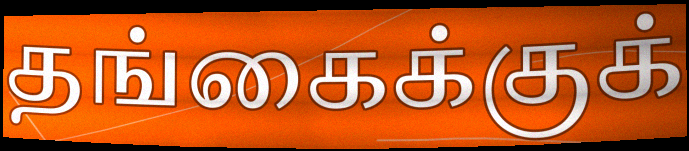
தங்கைக்குக்